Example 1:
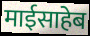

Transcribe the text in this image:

माईसाहेब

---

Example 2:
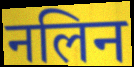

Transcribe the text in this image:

नलिन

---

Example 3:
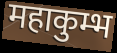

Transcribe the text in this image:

महाकुम्भ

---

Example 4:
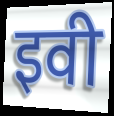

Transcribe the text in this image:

इवी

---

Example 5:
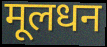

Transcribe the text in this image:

मूलधन